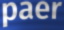
paer